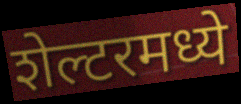
शेल्टरमध्ये